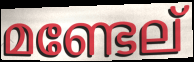
മണ്ടേല്